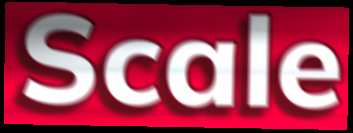
Scale